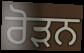
ਰੋੜਨ